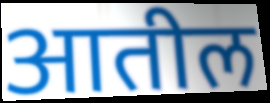
आतील